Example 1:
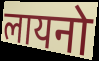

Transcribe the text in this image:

लायनो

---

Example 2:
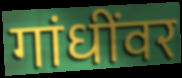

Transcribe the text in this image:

गांधींवर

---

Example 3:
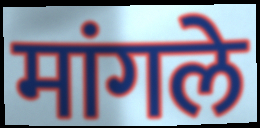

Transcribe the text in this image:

मांगले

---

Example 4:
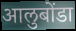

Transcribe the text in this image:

आलुबोंडा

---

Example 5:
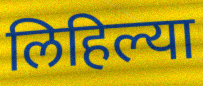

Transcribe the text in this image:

लिहिल्या